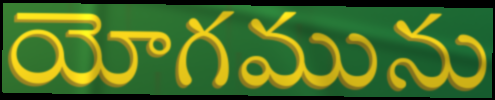
యోగమును